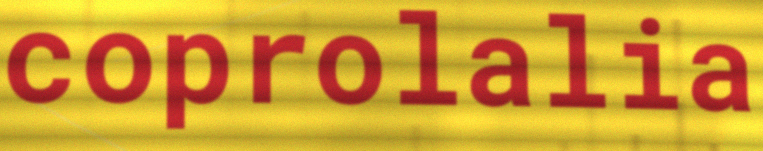
coprolalia